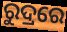
ରୁଦ୍ରରେ